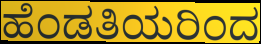
ಹೆಂಡತಿಯರಿಂದ